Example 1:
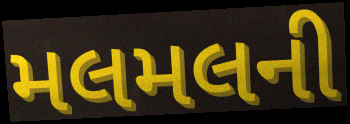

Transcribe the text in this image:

મલમલની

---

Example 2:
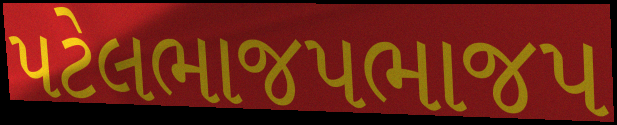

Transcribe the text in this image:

પટેલભાજપભાજપ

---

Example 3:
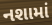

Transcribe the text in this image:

નશામાં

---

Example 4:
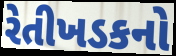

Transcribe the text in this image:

રેતીખડકનો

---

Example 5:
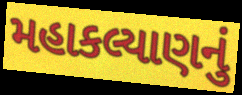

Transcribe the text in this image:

મહાકલ્યાણનું